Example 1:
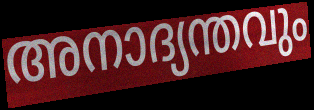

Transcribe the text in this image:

അനാദ്യന്തവും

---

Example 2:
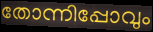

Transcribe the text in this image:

തോന്നിപ്പോവും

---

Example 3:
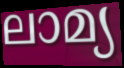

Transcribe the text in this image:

ലാമ്യ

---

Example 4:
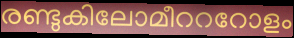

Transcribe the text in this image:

രണ്ടുകിലോമീറററോളം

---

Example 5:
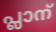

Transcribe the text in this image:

പ്ലാന്